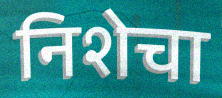
निशेचा